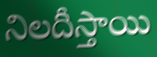
నిలదీస్తాయి